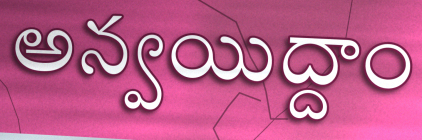
అన్వయిద్దాం